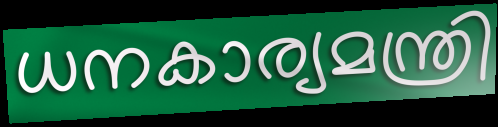
ധനകാര്യമന്ത്രി